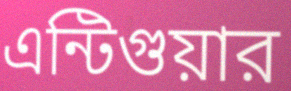
এন্টিগুয়ার